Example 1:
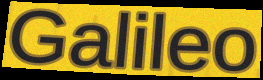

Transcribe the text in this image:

Galileo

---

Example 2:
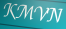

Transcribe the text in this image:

KMVN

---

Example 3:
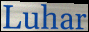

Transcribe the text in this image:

Luhar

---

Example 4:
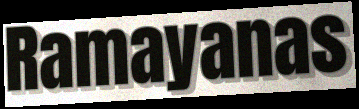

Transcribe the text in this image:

Ramayanas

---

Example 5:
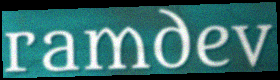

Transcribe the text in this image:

ramdev